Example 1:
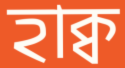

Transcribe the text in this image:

হাক্ব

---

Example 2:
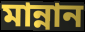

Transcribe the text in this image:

মান্নান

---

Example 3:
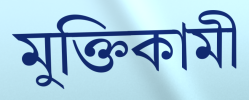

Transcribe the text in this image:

মুক্তিকামী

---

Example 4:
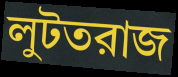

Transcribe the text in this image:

লুটতরাজ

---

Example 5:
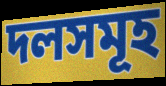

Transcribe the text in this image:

দলসমূহ